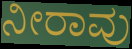
ನೀರಾವು